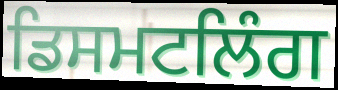
ਡਿਸਮਟਲਿੰਗ